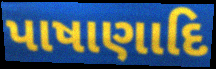
પાષાણાદિ